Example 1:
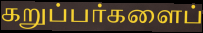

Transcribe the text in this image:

கறுப்பர்களைப்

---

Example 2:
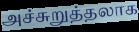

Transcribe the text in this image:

அச்சுறுத்தலாக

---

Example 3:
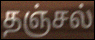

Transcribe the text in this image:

தஞ்சல்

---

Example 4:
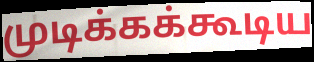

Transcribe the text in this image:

முடிக்கக்கூடிய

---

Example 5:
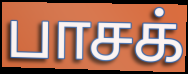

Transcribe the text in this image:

பாசக்